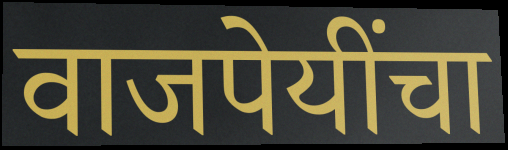
वाजपेयींचा